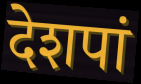
देशपां